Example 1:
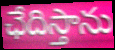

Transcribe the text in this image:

ఛేదిస్తాను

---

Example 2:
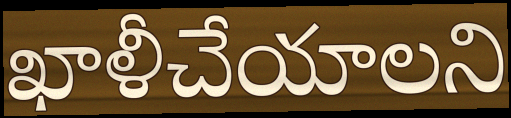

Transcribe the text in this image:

ఖాళీచేయాలని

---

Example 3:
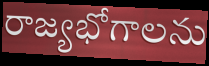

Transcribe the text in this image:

రాజ్యభోగాలను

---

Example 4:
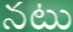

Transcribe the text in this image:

నటు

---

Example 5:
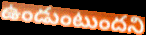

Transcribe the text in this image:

ఉండుంటుందని